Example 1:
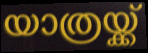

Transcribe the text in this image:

യാത്രയ്ക്ക്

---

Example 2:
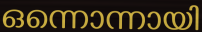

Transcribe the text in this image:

ഒന്നൊന്നായി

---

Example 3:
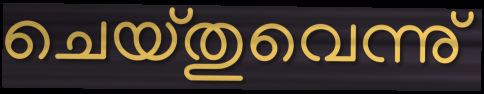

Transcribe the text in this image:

ചെയ്തുവെന്നു്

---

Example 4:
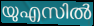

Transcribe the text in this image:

യുഎസിൽ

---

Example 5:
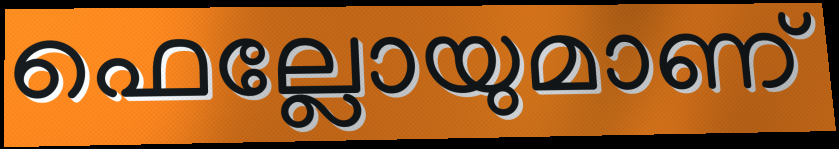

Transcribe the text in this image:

ഫെല്ലോയുമാണ്